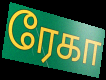
ரேகா